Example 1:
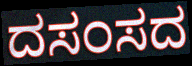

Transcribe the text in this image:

ದಸಂಸದ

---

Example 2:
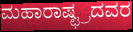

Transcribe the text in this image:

ಮಹಾರಾಷ್ಟ್ರದವರ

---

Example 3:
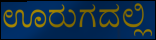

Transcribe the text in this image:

ಊರುಗದಲ್ಲಿ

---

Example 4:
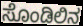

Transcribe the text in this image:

ಸೊಂಡಿಲಿನ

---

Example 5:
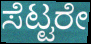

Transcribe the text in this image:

ಸೆಟ್ಟರೇ